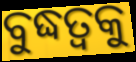
ବୁଦ୍ଧତ୍ଵକୁ